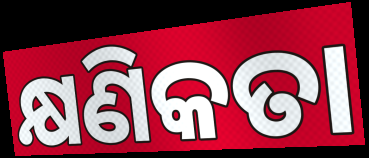
କ୍ଷଣିକତା